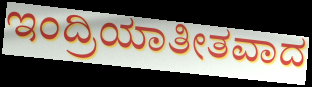
ಇಂದ್ರಿಯಾತೀತವಾದ